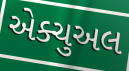
એક્ચુઅલ